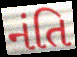
નંતિ